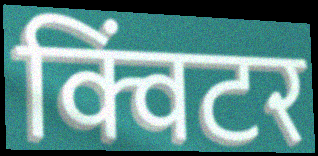
क्विंटर